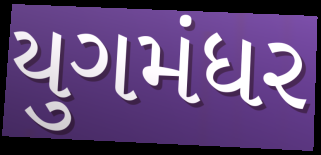
યુગમંધર